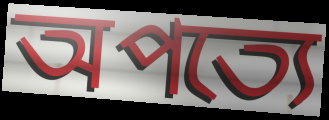
অপত্যে